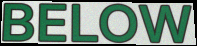
BELOW